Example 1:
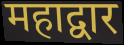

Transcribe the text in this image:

महाद्वार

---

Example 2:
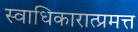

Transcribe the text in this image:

स्वाधिकारात्प्रमत्त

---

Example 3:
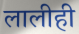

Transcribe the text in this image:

लालीही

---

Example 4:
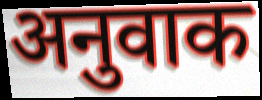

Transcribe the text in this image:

अनुवाक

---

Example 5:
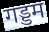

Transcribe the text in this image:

गड्डम